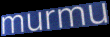
murmu